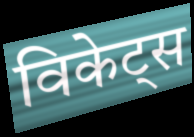
विकेट्स